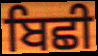
ਬਿਛੀ